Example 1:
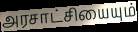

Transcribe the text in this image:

அரசாட்சியையும்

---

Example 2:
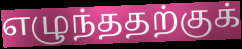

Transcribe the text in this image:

எழுந்ததற்குக்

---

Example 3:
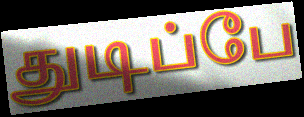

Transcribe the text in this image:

துடிப்பே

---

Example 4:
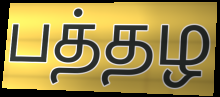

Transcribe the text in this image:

பத்தழ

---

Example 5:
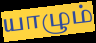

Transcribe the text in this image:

யாழும்